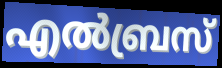
എൽബ്രസ്